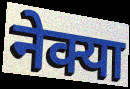
नेक्या